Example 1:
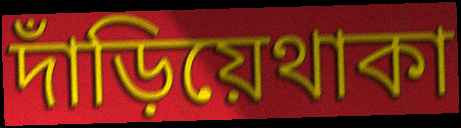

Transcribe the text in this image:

দাঁড়িয়েথাকা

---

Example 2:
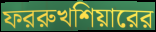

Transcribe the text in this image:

ফররুখশিয়ারের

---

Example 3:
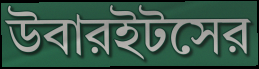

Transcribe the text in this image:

উবারইটসের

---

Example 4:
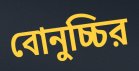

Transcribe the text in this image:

বোনুচ্চির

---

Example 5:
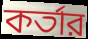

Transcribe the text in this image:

কর্তার